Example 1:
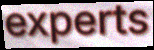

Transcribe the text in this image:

experts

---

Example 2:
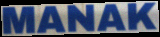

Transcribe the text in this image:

MANAK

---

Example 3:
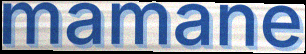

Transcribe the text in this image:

mamane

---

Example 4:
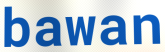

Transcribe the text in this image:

bawan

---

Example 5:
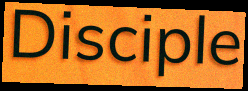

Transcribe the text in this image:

Disciple